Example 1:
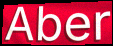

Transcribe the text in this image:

Aber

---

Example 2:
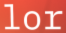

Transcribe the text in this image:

lor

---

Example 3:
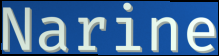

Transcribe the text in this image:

Narine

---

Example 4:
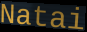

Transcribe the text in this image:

Natai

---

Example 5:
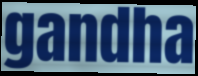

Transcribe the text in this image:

gandha